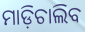
ମାଡ଼ିଚାଲିବ